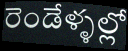
రెండేళ్ళల్లో